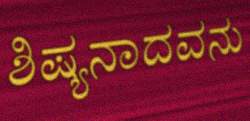
ಶಿಷ್ಯನಾದವನು